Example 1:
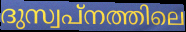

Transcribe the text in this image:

ദുസ്വപ്നത്തിലെ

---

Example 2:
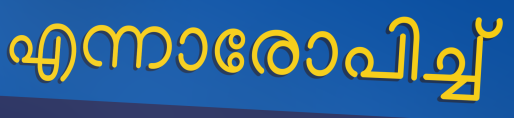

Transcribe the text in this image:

എന്നാരോപിച്ച്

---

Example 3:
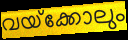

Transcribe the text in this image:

വയ്‌ക്കോലും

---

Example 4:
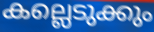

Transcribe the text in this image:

കല്ലെടുക്കും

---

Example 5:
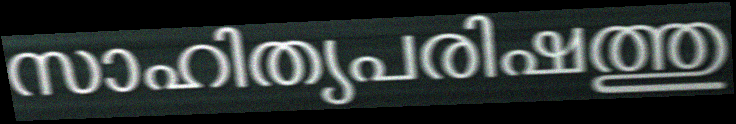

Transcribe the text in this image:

സാഹിത്യപരിഷത്തു